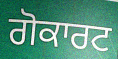
ਗੋਕਾਰਟ